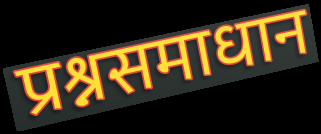
प्रश्नसमाधान